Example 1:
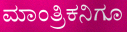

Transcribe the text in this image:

ಮಾಂತ್ರಿಕನಿಗೂ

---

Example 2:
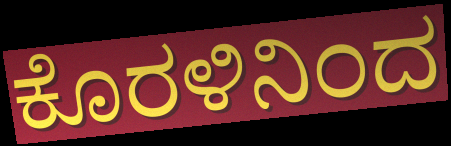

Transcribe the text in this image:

ಕೊರಳಿನಿಂದ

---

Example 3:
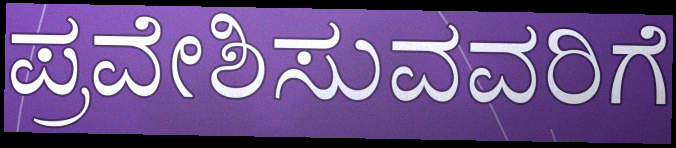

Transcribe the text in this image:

ಪ್ರವೇಶಿಸುವವರಿಗೆ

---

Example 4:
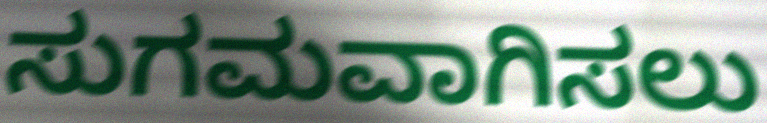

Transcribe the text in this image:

ಸುಗಮವಾಗಿಸಲು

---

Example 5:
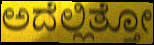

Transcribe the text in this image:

ಅದೆಲ್ಲಿತ್ತೋ